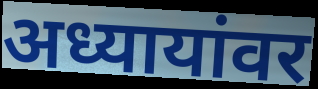
अध्यायांवर